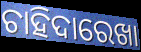
ଚାହିଦାରେଖା